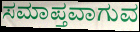
ಸಮಾಪ್ತವಾಗುವ